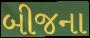
બીજના